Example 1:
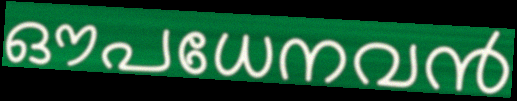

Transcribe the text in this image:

ഔപധേനവൻ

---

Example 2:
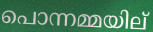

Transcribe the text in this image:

പൊന്നമ്മയില്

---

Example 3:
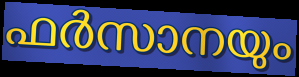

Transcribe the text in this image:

ഫർസാനയും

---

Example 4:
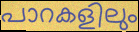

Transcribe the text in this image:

പാറകളിലും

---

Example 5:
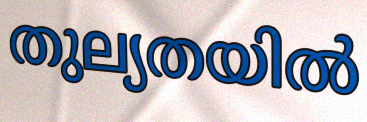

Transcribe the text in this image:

തുല്യതയിൽ